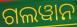
ଗଲୱାନ